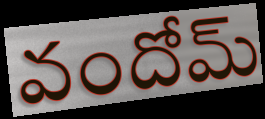
వందోమ్